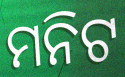
ମନିଟ